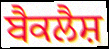
ਬੈਕਲੈਸ਼